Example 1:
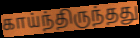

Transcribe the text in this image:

காய்ந்திருந்தது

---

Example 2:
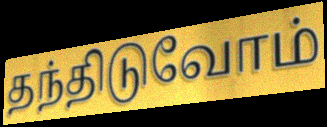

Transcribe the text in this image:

தந்திடுவோம்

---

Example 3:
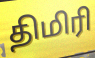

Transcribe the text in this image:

திமிரி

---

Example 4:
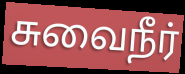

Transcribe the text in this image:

சுவைநீர்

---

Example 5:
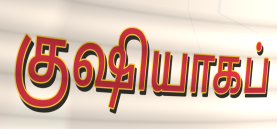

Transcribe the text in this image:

குஷியாகப்